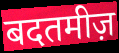
बदतमीज़